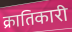
क्रातिकारी